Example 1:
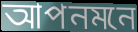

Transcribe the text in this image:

আপনমনে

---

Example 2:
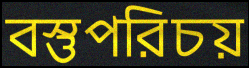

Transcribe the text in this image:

বস্তুপরিচয়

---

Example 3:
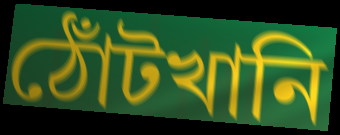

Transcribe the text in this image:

ঠোঁটখানি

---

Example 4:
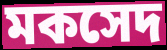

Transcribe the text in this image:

মকসেদ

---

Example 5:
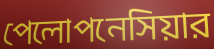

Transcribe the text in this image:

পেলোপনেসিয়ার